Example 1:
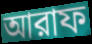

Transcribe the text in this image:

আরাফ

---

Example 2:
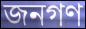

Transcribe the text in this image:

জনগণ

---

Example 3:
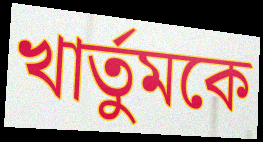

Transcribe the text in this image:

খার্তুমকে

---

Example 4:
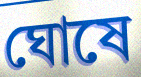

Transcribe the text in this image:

ঘোষে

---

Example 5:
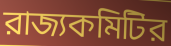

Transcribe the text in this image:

রাজ্যকমিটির